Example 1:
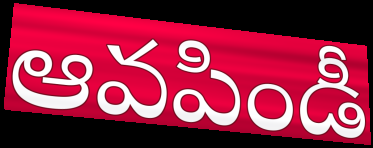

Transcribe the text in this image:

ఆవపిండీ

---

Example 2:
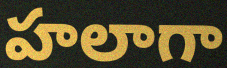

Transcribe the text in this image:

హలాగా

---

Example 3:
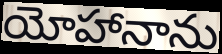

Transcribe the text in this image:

యోహానాను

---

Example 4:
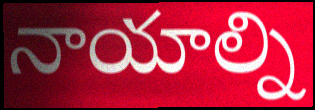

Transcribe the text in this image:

నాయాల్ని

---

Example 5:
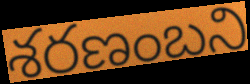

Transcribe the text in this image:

శరణంబని